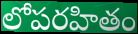
లోపరహితం